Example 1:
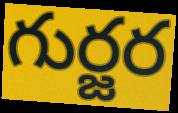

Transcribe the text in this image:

గుర్జర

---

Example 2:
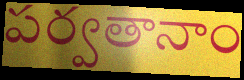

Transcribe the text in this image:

పర్వతానాం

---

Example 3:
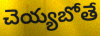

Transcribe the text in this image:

చెయ్యబోతే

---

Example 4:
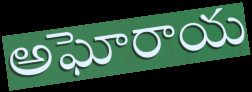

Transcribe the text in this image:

అఘోరాయ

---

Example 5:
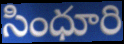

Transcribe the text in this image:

సింధూరి